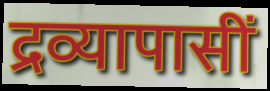
द्रव्यापासीं